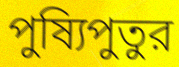
পুষ্যিপুতুর